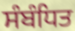
ਸੰਬੰਧਿਤ